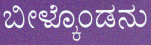
ಬೀಳ್ಕೊಂಡನು